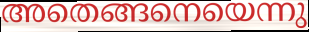
അതെങ്ങനെയെന്നു